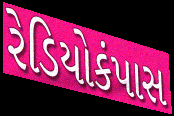
રેડિયોકંપાસ